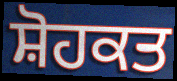
ਸ਼ੋਹਕਤ